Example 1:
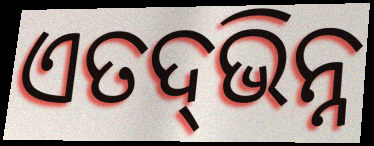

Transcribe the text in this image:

ଏତଦ୍‌ଭିନ୍ନ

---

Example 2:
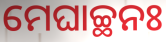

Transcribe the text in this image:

ମେଘାଚ୍ଛନଃ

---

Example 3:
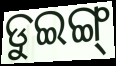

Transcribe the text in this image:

ଡୁଇଙ୍ଗ୍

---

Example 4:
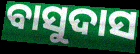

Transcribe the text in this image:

ବାସୁଦାସ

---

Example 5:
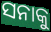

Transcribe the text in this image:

ସନାକୁ